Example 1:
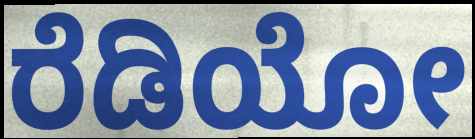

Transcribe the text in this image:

ರೆಡಿಯೋ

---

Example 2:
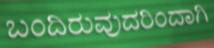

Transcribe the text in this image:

ಬಂದಿರುವುದರಿಂದಾಗಿ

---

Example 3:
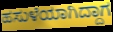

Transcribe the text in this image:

ಹಸುಳೆಯಾಗಿದ್ದಾಗ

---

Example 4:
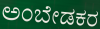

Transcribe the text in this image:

ಅಂಬೇಡಕರ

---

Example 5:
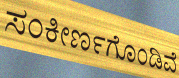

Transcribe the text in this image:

ಸಂಕೀರ್ಣಗೊಂಡಿವೆ